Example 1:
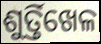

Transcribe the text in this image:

ଶୁର୍ତ୍ତିଖେଳ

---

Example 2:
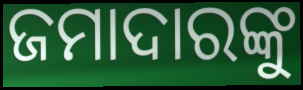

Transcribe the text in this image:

ଜମାଦାରଙ୍କୁ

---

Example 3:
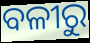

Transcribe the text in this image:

ବଳୀରୁ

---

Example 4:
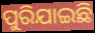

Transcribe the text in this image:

ପୁରିଯାଇଛି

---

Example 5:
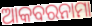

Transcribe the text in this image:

ଆକବରନାମା